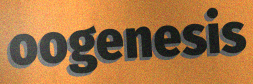
oogenesis